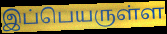
இப்பெயருள்ள